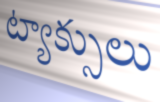
ట్యాక్సులు